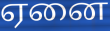
ஏனை